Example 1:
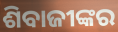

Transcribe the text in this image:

ଶିବାଜୀଙ୍କର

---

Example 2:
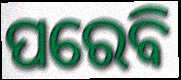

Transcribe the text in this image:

ପରେବି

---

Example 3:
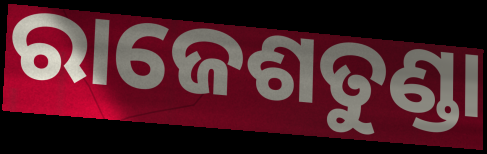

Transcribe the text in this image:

ରାଜେଶତୁଣ୍ଡା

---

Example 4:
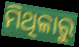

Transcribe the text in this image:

ମିଥିଳାରୁ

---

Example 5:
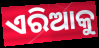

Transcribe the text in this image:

ଏରିଆକୁ